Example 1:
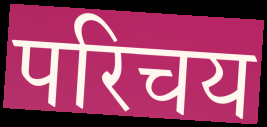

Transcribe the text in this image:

परिचय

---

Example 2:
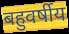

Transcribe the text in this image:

बहुवर्षीय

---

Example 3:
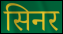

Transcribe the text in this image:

सिनर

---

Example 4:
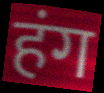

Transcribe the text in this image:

हंग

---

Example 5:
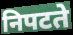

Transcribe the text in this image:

निपटते